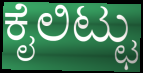
ಕೈಲಿಟ್ಟು